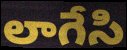
లాగేసి